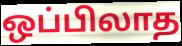
ஒப்பிலாத